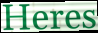
Heres